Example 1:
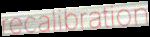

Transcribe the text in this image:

recalibration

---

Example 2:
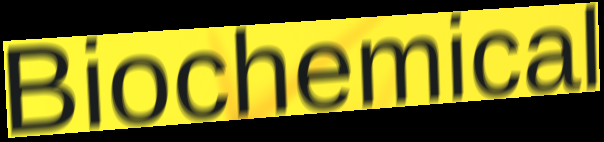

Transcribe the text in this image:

Biochemical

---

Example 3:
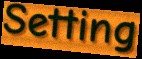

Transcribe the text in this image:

Setting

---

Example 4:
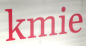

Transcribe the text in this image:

kmie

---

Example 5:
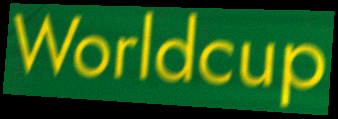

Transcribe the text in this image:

Worldcup